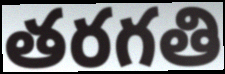
తరగతి